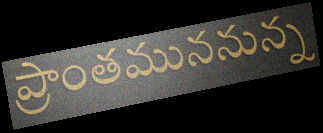
ప్రాంతముననున్న